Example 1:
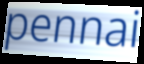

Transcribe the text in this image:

pennai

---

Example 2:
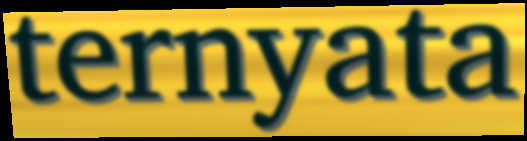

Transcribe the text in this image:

ternyata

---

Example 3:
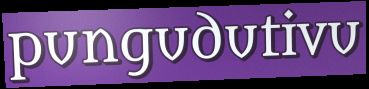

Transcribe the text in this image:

pungudutivu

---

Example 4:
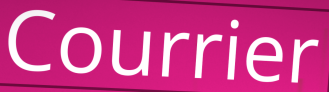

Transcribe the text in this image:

Courrier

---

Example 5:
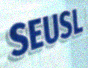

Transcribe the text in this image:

SEUSL